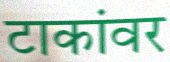
टाकांवर